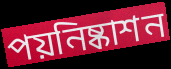
পয়নিষ্কাশন